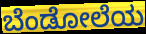
ಬೆಂಡೋಲೆಯ